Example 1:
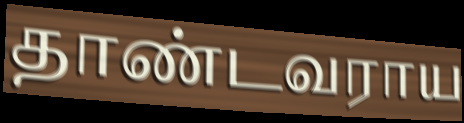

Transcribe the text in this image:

தாண்டவராய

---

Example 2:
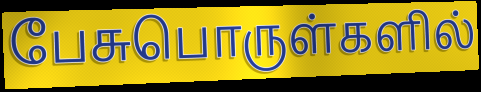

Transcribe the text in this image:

பேசுபொருள்களில்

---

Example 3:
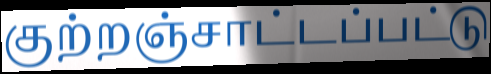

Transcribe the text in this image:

குற்றஞ்சாட்டப்பட்டு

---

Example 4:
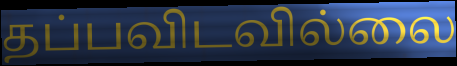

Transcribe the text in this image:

தப்பவிடவில்லை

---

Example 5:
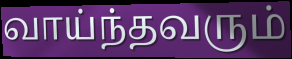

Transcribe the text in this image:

வாய்ந்தவரும்